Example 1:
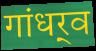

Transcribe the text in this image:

गांधर्व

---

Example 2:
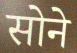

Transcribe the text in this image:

सोने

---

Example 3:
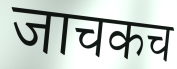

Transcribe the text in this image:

जाचकच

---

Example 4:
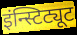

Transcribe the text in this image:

इंन्स्टिट्यूट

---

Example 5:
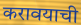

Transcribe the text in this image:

करावयाची